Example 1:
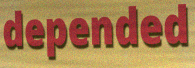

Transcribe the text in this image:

depended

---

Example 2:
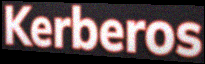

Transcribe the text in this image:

Kerberos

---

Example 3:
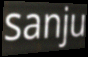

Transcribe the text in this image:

sanju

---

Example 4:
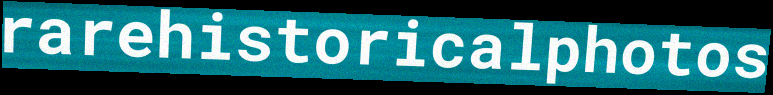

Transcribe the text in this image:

rarehistoricalphotos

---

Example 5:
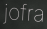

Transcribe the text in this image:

jofra